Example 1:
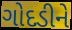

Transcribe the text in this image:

ગોદડીને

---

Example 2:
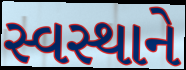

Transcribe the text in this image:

સ્વસ્થાને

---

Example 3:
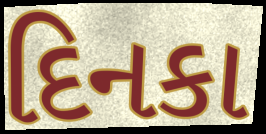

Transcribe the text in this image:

દિનકા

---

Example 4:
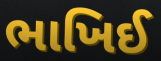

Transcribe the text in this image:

ભાખિઈ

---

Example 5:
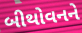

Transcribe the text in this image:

બીથોવનને